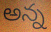
అన్న